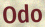
Odo